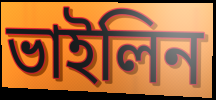
ভাইলিন